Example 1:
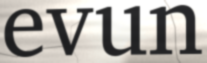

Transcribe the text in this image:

evun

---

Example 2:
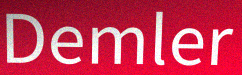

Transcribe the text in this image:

Demler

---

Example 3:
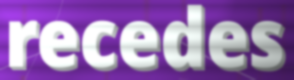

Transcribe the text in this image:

recedes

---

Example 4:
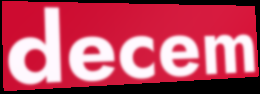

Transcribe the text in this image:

decem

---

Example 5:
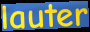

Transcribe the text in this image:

lauter